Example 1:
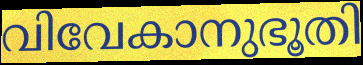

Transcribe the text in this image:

വിവേകാനുഭൂതി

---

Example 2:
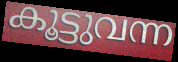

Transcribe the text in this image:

കൂട്ടുവന്ന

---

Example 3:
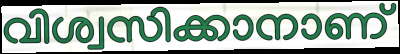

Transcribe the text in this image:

വിശ്വസിക്കാനാണ്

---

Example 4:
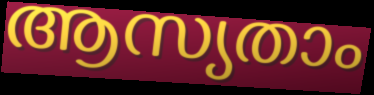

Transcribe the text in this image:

ആസ്യതാം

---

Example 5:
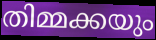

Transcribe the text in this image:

തിമ്മക്കയും